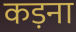
कड़ना